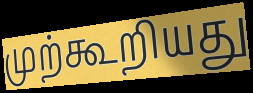
முற்கூறியது